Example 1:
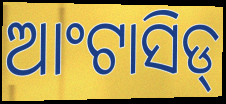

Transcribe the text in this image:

ଆଂଟାସିଡ୍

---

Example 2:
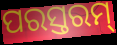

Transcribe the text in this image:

ପରସ୍ତରମ୍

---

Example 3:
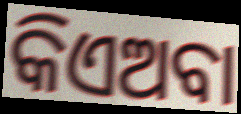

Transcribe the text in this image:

କିଏଅବା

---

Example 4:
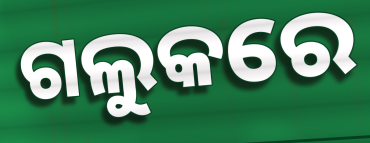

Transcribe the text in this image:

ଗଲୁକରେ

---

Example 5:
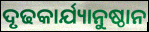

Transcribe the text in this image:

ଦୃଢକାର୍ଯ୍ୟାନୁଷ୍ଠାନ